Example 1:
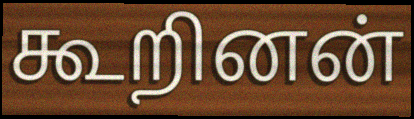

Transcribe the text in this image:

கூறினன்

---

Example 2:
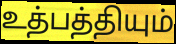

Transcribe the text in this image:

உத்பத்தியும்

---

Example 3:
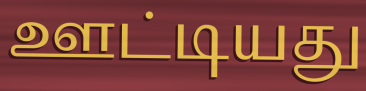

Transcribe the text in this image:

ஊட்டியது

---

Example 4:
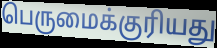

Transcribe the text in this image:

பெருமைக்குரியது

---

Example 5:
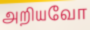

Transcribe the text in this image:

அறியவோ